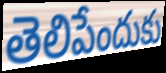
తెలిపేందుకు